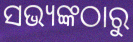
ସଭ୍ୟଙ୍କଠାରୁ